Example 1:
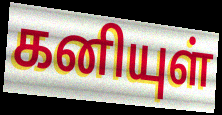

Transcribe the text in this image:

கனியுள்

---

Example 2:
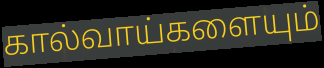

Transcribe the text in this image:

கால்வாய்களையும்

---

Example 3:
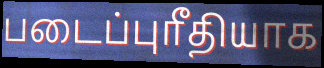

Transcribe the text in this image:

படைப்புரீதியாக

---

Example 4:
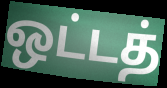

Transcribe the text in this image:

ஒட்டத்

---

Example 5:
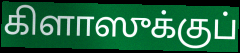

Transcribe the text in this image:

கிளாஸுக்குப்